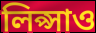
লিপ্সাও